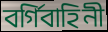
বর্গিবাহিনী